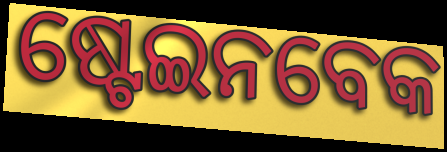
ଷ୍ଟେଇନବେକ